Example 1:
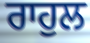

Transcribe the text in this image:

ਰਾਹੁਲ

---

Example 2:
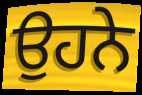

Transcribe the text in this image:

ਉਹਨੇ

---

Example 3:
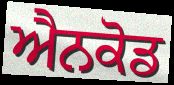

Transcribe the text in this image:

ਐਨਕੋਡ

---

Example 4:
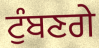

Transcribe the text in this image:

ਟੁੰਬਣਗੇ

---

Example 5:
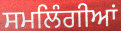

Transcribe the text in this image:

ਸਮਲਿੰਗੀਆਂ